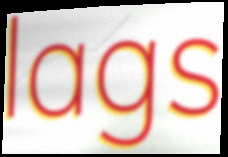
lags